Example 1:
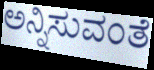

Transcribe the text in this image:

ಅನ್ನಿಸುವಂತೆ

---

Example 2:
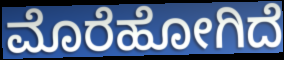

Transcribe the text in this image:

ಮೊರೆಹೋಗಿದೆ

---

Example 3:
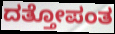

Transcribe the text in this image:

ದತ್ತೋಪಂತ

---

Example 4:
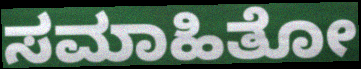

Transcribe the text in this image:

ಸಮಾಹಿತೋ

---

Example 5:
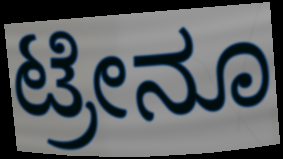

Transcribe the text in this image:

ಟ್ರೇನೂ